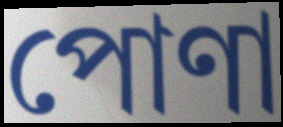
পোণা